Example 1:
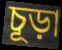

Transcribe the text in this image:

চূড়া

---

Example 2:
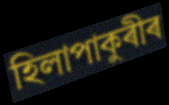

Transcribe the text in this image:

হিলাপাকুৰীৰ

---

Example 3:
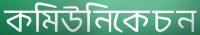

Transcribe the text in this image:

কমিউনিকেচন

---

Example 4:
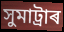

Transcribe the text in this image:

সুমাট্ৰাৰ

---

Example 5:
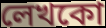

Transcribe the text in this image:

লেখকো